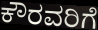
ಕೌರವರಿಗೆ